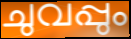
ചുവപ്പും